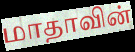
மாதாவின்